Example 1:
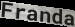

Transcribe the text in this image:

Franda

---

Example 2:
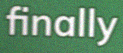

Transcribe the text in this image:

finally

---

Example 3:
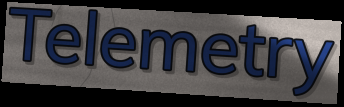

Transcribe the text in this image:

Telemetry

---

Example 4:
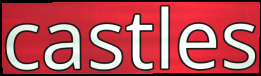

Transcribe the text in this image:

castles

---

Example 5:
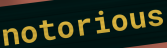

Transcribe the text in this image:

notorious